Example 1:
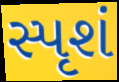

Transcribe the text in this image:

સ્પૃશં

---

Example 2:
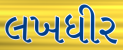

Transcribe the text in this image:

લખધીર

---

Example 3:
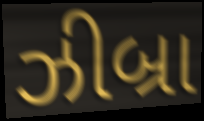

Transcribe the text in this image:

ઝીબ્રા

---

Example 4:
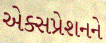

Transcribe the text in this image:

એક્સપ્રેશનને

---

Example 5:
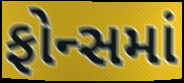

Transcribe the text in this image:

ફોન્સમાં